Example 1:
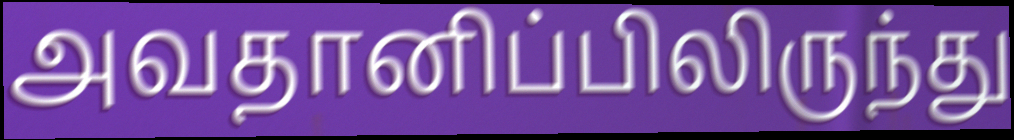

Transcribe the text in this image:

அவதானிப்பிலிருந்து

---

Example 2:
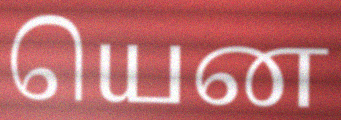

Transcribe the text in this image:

யென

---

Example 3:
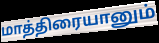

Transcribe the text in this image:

மாத்திரையானும்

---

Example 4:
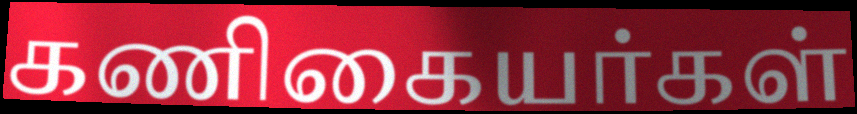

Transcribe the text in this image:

கணிகையர்கள்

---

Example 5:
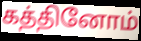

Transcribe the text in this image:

கத்தினோம்